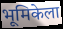
भूमिकेला